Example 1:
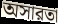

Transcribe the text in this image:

অসারতা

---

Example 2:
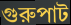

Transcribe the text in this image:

গুরুপাট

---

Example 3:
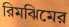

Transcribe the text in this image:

রিমঝিমের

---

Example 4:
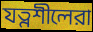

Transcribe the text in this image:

যত্নশীলেরা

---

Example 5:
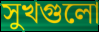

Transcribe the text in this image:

সুখগুলো